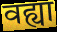
वह्या